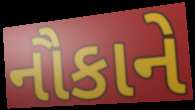
નૌકાને